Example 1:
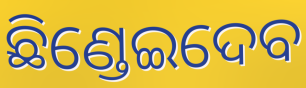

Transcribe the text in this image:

ଛିଣ୍ଡେଇଦେବ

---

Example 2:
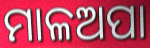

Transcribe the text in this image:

ମାଳଅପା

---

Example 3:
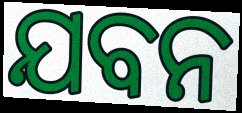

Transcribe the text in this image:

ଯବନ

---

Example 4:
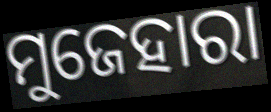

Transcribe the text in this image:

ମୁଜେହାରା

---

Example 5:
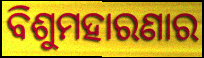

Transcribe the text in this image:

ବିଶୁମହାରଣାର